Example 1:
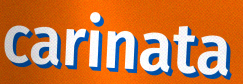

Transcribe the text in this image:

carinata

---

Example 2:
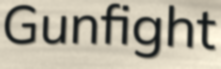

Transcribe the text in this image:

Gunfight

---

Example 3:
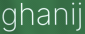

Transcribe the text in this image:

ghanij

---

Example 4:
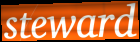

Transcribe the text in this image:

steward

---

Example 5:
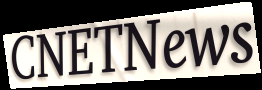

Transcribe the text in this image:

CNETNews